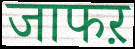
जाफऱ